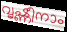
വൃഷ്ണീനാം